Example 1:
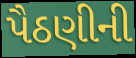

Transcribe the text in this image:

પૈઠણીની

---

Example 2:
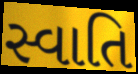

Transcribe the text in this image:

સ્વાતિ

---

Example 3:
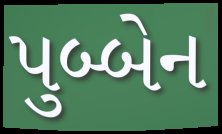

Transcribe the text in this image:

પુબ્બેન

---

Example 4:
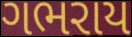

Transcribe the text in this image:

ગભરાય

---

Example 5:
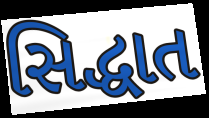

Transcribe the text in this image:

સિદ્ધાત